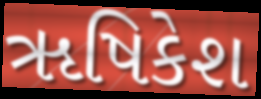
ૠષિકેશ